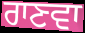
ਰਾਣਵਾ